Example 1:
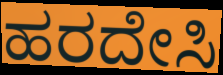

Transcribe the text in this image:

ಹರದೇಸಿ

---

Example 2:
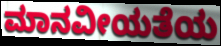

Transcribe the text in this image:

ಮಾನವೀಯತೆಯ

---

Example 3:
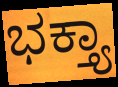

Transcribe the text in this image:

ಭಕ್ತ್ಯಾ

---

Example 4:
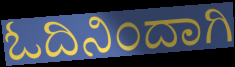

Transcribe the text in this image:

ಓದಿನಿಂದಾಗಿ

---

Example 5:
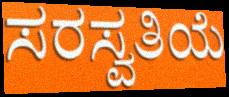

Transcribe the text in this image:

ಸರಸ್ವತಿಯೆ